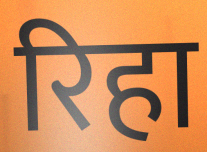
रिहा